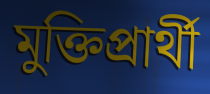
মুক্তিপ্রার্থী